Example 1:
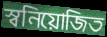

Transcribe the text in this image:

স্বনিয়োজিত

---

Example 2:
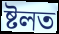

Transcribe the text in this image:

ষ্টলত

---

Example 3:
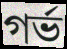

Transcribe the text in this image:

গৰ্ভ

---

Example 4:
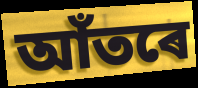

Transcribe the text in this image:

আঁতৰে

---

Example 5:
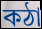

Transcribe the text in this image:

কঠা